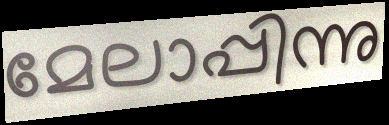
മേലാപ്പിന്നു